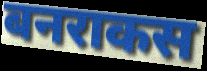
बनराकस